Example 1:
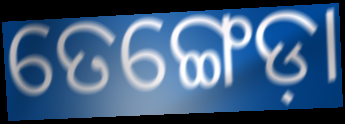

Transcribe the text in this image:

ତେଙ୍ଗେଡ଼ା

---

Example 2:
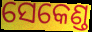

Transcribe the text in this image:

ସେକେଣ୍ଡ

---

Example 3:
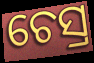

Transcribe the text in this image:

ଚେସ୍ର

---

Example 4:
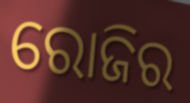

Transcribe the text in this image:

ରୋଜିର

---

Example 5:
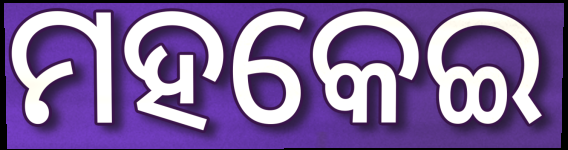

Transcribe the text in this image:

ମହକେଇ